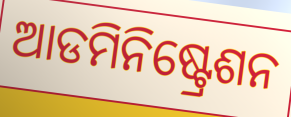
ଆଡମିନିଷ୍ଟ୍ରେଶନ